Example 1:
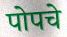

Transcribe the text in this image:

पोपचे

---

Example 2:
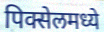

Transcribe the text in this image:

पिक्सेलमध्ये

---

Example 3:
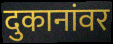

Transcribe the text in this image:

दुकानांवर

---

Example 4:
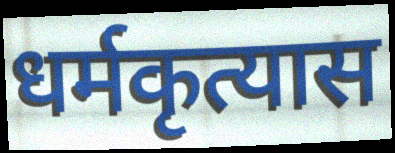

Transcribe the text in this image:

धर्मकृत्यास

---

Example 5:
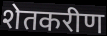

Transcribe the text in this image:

शेतकरीण